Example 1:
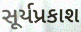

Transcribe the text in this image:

સૂર્યપ્રકાશ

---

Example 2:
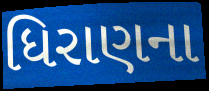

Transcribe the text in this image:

ધિરાણના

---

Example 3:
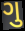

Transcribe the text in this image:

ગુ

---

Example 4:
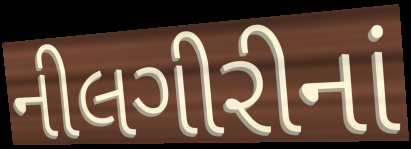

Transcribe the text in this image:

નીલગીરીનાં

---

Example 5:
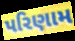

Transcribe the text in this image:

પરિણામ